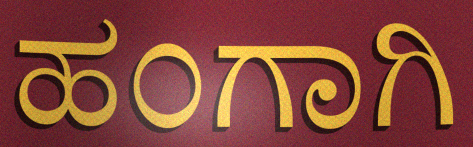
ಹಂಗಾಗಿ